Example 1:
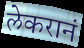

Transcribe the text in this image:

लेकरानं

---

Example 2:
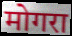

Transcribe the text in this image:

मोगरा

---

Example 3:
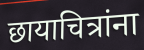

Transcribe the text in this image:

छायाचित्रांना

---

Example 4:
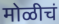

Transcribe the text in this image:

मोळीचं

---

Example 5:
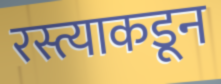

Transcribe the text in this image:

रस्त्याकडून